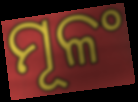
ମୂଳଂ